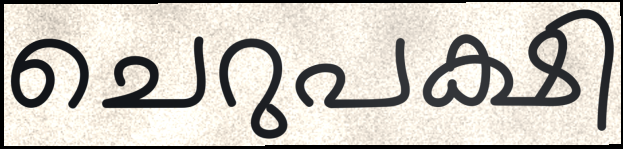
ചെറുപക്ഷി